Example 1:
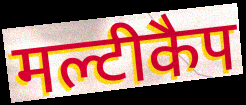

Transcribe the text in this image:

मल्टीकैप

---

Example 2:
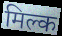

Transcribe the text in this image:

मिल्क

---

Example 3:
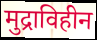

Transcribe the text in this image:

मुद्राविहीन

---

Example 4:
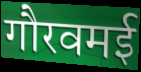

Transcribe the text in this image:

गौरवमई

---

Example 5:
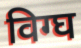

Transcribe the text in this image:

विग्घ